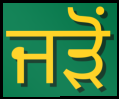
ਜਡ਼ੋਂ